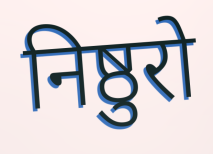
निष्ठुरो